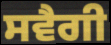
ਸਵੈਗੀ